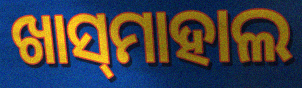
ଖାସ୍‌ମାହାଲ